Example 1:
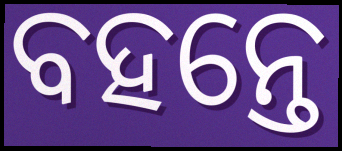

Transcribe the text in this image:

ବହନ୍ତେ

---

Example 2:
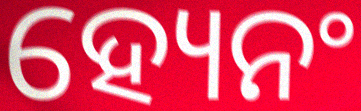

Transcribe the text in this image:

ହ୍ୟେନଂ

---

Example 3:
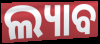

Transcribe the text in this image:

ଲ୍ୟାବ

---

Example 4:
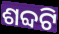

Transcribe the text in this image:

ଶବ୍ଦଟି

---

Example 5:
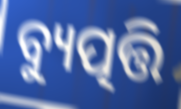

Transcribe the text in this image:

ବ୍ୟୁତ୍ପତ୍ତି